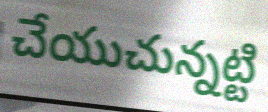
చేయుచున్నట్టి